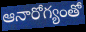
ఆనారోగ్యంతో